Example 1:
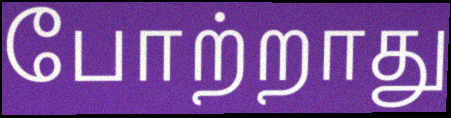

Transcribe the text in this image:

போற்றாது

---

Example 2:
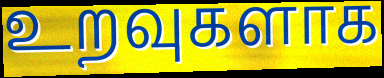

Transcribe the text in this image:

உறவுகளாக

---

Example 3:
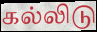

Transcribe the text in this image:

கல்லிடு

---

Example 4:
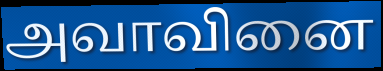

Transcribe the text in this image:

அவாவினை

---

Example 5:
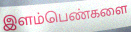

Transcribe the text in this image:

இளம்பெண்களை